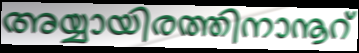
അയ്യായിരത്തിനാനൂറ്